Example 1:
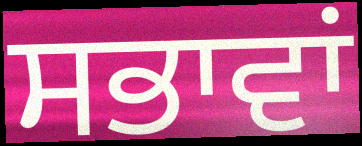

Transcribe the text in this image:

ਸਭਾਵਾਂ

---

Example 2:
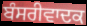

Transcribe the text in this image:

ਬੰਸਰੀਵਾਦਕ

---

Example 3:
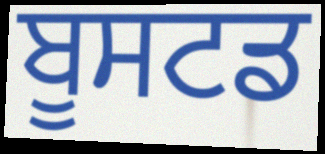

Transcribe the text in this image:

ਬੂਸਟਡ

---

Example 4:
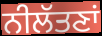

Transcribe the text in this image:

ਨੀਲੱਤਣਾਂ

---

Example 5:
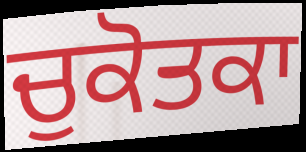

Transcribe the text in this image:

ਚੁਕੋਤਕਾ